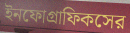
ইনফোগ্রাফিকসের